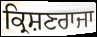
ਕ੍ਰਿਸ਼ਣਰਾਜਾ